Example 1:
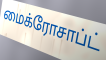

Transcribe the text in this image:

மைக்ரோசாப்ட்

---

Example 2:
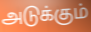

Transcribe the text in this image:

அடுக்கும்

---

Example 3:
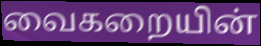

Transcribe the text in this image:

வைகறையின்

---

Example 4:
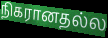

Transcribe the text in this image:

நிகரானதல்ல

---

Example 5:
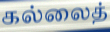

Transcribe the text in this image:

கல்லைத்